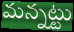
మన్నట్టు